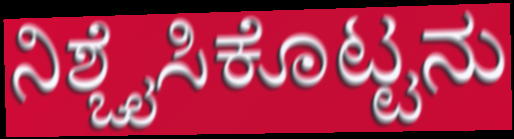
ನಿಶ್ಚೈಸಿಕೊಟ್ಟನು